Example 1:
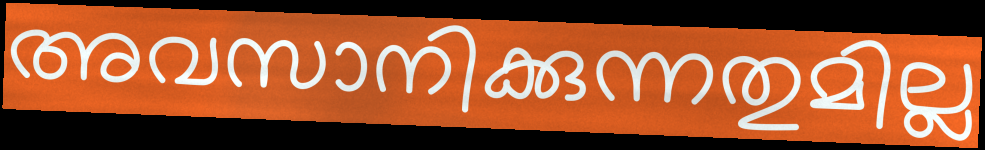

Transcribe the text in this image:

അവസാനിക്കുന്നതുമില്ല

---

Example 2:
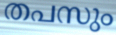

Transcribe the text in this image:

തപസും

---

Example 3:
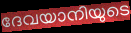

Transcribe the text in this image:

ദേവയാനിയുടെ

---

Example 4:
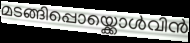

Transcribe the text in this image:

മടങ്ങിപ്പൊയ്ക്കൊൾവിൻ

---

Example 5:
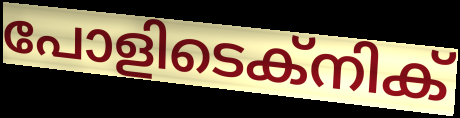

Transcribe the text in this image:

പോളിടെക്നിക്